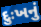
દુઃખનું